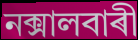
নক্সালবাৰী